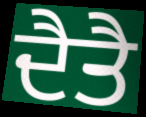
ਦੈਤੈ